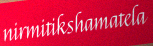
nirmitikshamatela